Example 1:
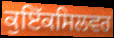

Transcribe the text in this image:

ਕੁਇੱਕਸਿਲਵਰ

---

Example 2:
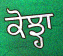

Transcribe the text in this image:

ਕੋਝ੍ਹਾ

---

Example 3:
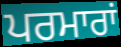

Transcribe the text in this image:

ਪਰਮਾਰਾਂ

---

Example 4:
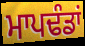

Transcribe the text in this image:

ਮਾਪਢੰਡਾਂ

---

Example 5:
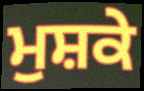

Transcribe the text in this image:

ਮੁਸ਼ਕੇ